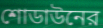
শোডাউনের